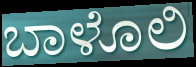
ಬಾಳೊಲಿ